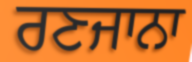
ਰਣਜਾਨਾ